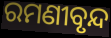
ରମଣୀବୃନ୍ଦ